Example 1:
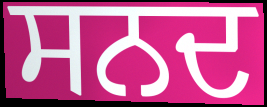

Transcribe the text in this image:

ਸਨਦ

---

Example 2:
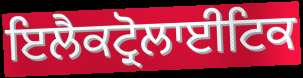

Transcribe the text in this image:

ਇਲੈਕਟ੍ਰੋਲਾਈਟਿਕ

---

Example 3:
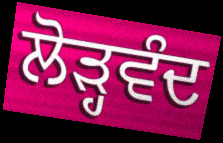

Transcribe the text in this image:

ਲੋੜ੍ਹਵੰਦ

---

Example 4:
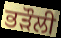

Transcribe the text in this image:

ਭੜੌਲੀ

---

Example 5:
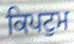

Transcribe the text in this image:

ਕਿਪਟੁਮ